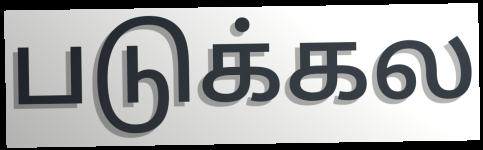
படுக்கல